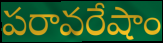
పరావరేషాం